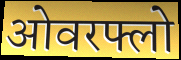
ओवरफ्लो